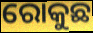
ରୋକୁଛ